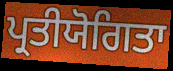
ਪ੍ਰਤੀਯੋਗਿਤਾ